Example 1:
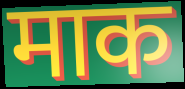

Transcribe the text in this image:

माक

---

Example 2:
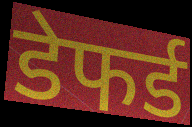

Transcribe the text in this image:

डेफर्ड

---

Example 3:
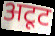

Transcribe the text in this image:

अटूट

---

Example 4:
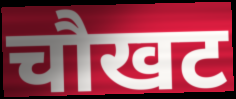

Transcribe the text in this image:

चौखट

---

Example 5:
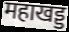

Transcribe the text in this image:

महाखड्ड